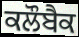
ਕਲੌਬੈਕ